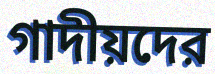
গাদীয়দের